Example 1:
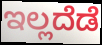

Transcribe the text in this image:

ಇಲ್ಲದೆಡೆ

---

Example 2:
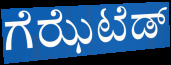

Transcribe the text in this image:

ಗೆಝೆಟೆಡ್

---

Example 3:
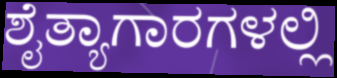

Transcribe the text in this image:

ಶೈತ್ಯಾಗಾರಗಳಲ್ಲಿ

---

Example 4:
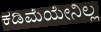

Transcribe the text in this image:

ಕಡಿಮೆಯೇನಿಲ್ಲ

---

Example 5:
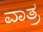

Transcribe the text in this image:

ವಾತ್ರ